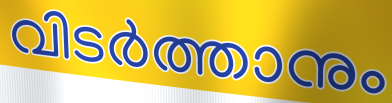
വിടർത്താനും